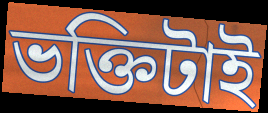
ভক্তিটাই